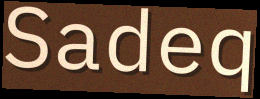
Sadeq